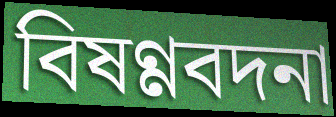
বিষণ্ণবদনা